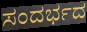
ಸಂದರ್ಭದ